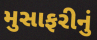
મુસાફરીનું